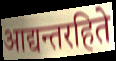
आद्यन्तरहिते